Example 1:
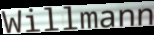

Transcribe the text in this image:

Willmann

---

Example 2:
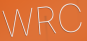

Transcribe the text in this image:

WRC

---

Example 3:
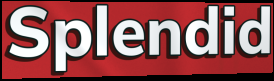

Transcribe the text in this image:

Splendid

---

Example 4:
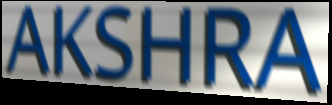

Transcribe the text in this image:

AKSHRA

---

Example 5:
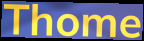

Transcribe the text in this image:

Thome